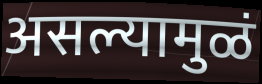
असल्यामुळं